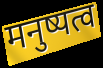
मनुष्यत्‍व